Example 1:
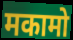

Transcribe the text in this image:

मकामो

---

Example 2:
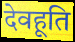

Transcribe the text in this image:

देवहूति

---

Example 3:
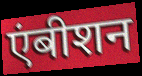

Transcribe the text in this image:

एंबीशन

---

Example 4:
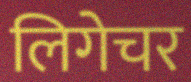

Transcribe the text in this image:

लिगेचर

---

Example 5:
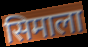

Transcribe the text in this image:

सिमाला